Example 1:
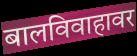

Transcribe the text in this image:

बालविवाहावर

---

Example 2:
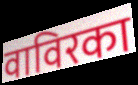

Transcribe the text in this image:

वाविरका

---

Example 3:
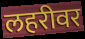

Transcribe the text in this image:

लहरीवर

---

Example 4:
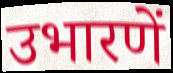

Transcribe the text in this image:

उभारणें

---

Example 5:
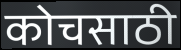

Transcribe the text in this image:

कोचसाठी